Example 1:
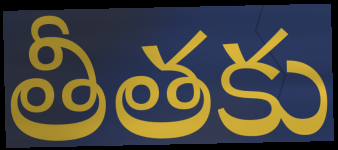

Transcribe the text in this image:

తీతకు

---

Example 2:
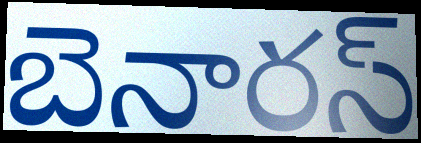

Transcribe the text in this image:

బెనారస్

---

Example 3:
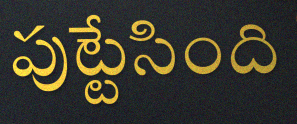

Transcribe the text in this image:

పుట్టేసింది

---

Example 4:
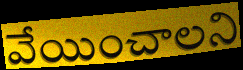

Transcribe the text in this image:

వేయించాలని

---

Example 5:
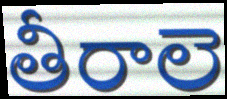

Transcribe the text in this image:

తీరాలె